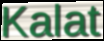
Kalat